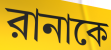
রানাকে